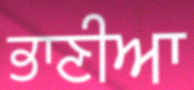
ਭਾਣੀਆ